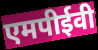
एमपीईवी